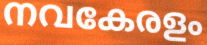
നവകേരളം